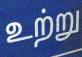
உற்று